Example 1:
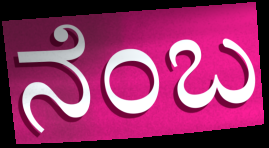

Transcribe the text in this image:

ನೆಂಬ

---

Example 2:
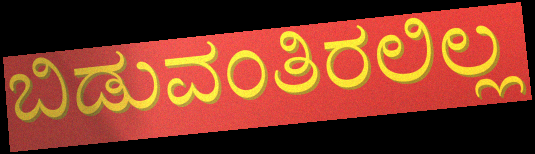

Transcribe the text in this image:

ಬಿಡುವಂತಿರಲಿಲ್ಲ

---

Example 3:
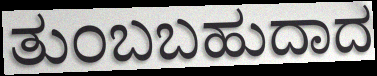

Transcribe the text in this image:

ತುಂಬಬಹುದಾದ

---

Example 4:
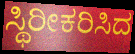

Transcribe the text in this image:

ಸ್ಥಿರೀಕರಿಸಿದ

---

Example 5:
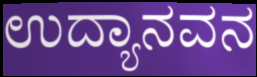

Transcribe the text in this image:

ಉದ್ಯಾನವನ